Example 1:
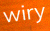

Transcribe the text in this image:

wiry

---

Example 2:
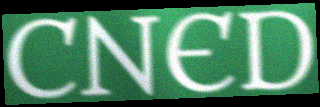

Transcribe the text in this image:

CNED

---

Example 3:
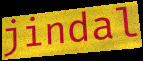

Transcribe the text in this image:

jindal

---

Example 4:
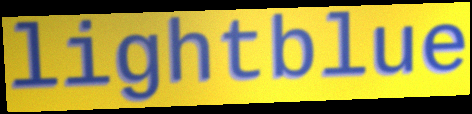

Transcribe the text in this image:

lightblue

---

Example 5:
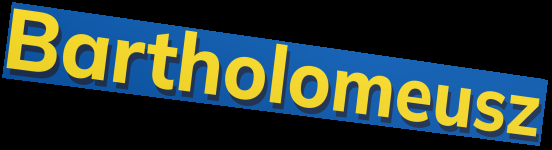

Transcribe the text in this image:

Bartholomeusz